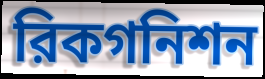
রিকগনিশন